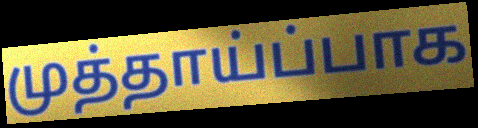
முத்தாய்ப்பாக